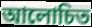
আলোচিত